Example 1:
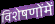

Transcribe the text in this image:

विशेषणोंमें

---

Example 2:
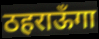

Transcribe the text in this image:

ठहराऊँगा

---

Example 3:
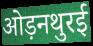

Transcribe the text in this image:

ओड़नथुरई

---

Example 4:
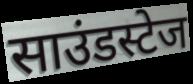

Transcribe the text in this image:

साउंडस्टेज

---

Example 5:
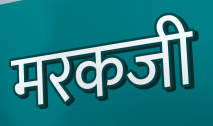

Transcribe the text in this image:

मरकजी